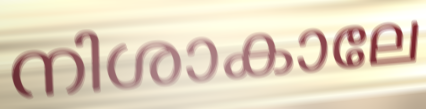
നിശാകാലേ